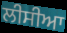
ਲੀਸੀਆ